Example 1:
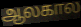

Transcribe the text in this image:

ஆலகால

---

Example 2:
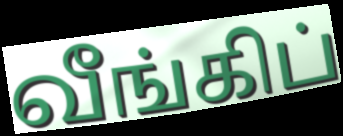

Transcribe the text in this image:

வீங்கிப்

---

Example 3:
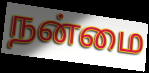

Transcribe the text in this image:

நன்மை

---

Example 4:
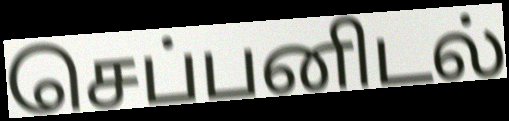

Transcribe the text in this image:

செப்பனிடல்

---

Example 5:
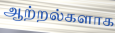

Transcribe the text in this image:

ஆற்றல்களாக